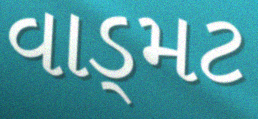
વાડ્મટ